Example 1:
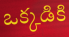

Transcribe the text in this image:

ఒక్కడికి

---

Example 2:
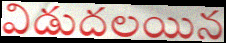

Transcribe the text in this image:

విడుదలయిన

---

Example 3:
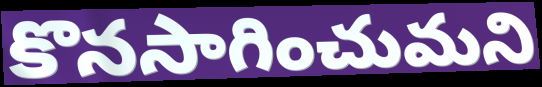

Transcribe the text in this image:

కొనసాగించుమని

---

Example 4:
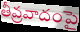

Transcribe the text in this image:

తీవ్రవాదంపై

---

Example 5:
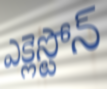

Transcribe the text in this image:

ఎక్లెస్టోన్